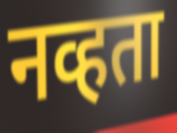
नव्हता